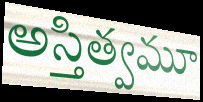
అస్తిత్వమూ